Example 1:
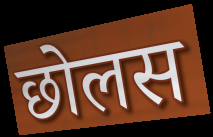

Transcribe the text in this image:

छोलस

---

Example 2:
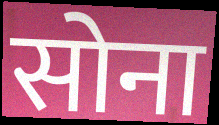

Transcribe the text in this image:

सोना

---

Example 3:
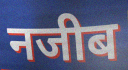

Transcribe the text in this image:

नजीब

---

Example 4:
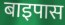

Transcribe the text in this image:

बाइपास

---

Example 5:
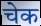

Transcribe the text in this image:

चेक